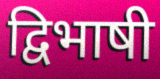
द्विभाषी